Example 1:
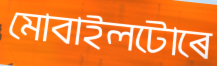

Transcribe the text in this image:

মোবাইলটোৰে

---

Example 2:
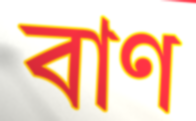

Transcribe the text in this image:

বাণ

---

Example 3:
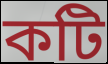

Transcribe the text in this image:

কটি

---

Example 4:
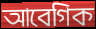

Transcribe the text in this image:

আবেগিক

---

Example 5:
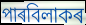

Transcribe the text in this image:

পাৰবিলাকৰ